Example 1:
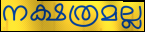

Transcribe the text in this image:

നക്ഷത്രമല്ല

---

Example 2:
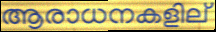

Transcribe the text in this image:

ആരാധനകളില്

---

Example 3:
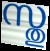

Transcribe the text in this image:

സ്തു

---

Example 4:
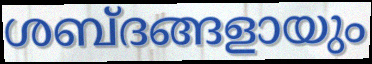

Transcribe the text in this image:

ശബ്ദങ്ങളായും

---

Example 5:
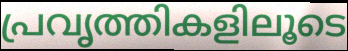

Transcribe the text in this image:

പ്രവൃത്തികളിലൂടെ